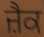
ਜ਼ੈਕ